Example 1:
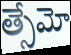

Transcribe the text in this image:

త్సేమో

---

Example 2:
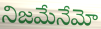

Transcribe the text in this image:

నిజమేనేమో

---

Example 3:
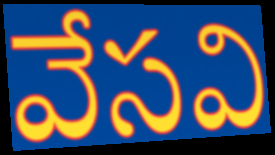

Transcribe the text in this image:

వేసవి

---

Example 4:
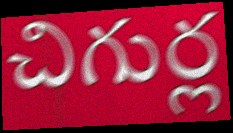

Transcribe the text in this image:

చిగుర్ల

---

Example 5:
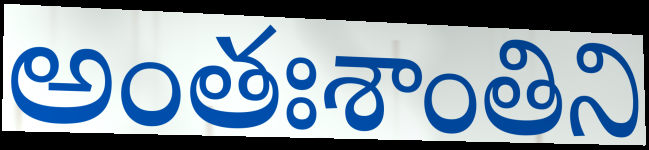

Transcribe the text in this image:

అంతఃశాంతిని